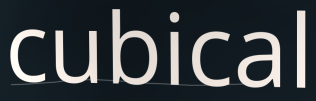
cubical